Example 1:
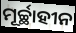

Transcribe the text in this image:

ମୂର୍ଚ୍ଛାହୀନ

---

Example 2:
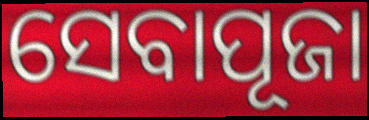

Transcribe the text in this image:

ସେବାପୂଜା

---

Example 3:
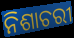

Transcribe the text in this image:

ନିଶାଚରୀ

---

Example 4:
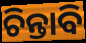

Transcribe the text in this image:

ଚିନ୍ତାବି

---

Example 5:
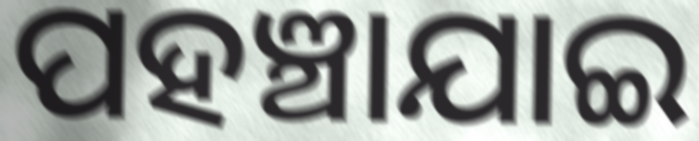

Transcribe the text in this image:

ପହଞ୍ଚାଯାଇ